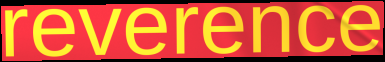
reverence